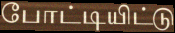
போட்டியிட்டு